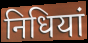
निधियां